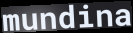
mundina